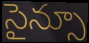
సైన్సూ